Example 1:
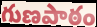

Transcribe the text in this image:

గుణపాఠం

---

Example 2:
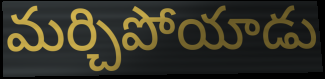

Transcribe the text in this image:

మర్చిపోయాడు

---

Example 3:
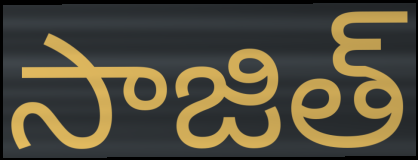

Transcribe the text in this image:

సాజిత్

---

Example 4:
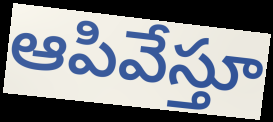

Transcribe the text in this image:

ఆపివేస్తూ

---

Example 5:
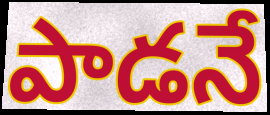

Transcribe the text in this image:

పాడనే